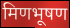
मिणभूषण